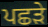
ਪਛੜੇ